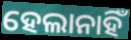
ହେଲାନାହିଁ